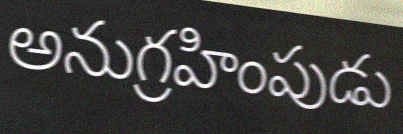
అనుగ్రహింపుడు